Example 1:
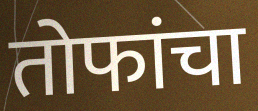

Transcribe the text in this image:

तोफांचा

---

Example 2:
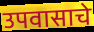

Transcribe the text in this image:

उपवासाचे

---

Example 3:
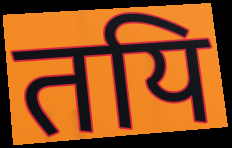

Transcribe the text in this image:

तयि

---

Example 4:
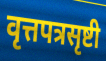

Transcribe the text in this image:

वृत्तपत्रसृष्टी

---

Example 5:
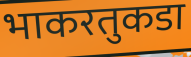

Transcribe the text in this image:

भाकरतुकडा